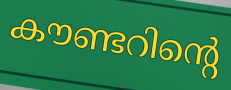
കൗണ്ടറിന്റെ